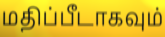
மதிப்பீடாகவும்